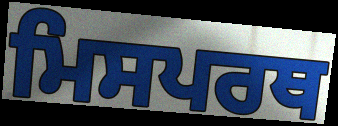
ਮਿਸਪਰਥ